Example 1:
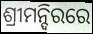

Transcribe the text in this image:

ଶ୍ରୀମନ୍ଦିରରେ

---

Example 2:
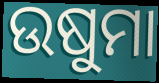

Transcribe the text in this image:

ଉଷୁମା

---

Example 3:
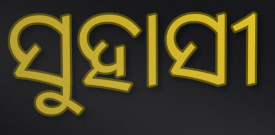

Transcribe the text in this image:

ସୁହାସୀ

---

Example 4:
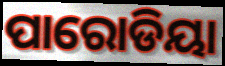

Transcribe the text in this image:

ପାରୋଡିୟା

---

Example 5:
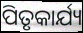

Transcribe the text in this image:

ପିତୃକାର୍ଯ୍ୟ